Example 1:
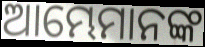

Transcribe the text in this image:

ଆମ୍ଭେମାନଙ୍କ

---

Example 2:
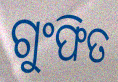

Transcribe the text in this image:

ଗୁଂଫିତ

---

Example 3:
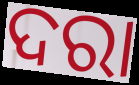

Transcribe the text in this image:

ଦରା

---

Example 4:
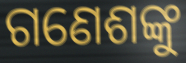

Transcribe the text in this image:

ଗଣେଶଙ୍କୁ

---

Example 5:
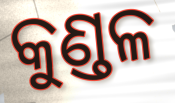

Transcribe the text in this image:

କୁଣ୍ଡଳ